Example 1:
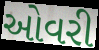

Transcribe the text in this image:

ઓવરી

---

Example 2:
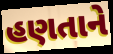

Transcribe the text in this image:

હણતાને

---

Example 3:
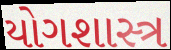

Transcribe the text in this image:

યોગશાસ્‍ત્ર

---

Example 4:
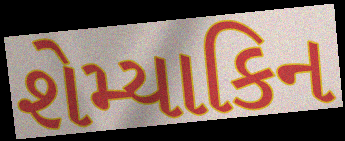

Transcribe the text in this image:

શેમ્યાકિન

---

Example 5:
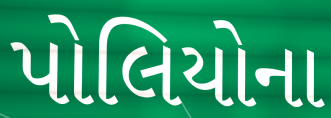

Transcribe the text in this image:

પોલિયોના